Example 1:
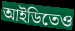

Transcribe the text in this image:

আইডিতেও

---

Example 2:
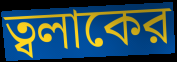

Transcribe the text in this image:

ত্বলাকের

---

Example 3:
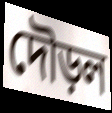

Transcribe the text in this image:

দৌড়ল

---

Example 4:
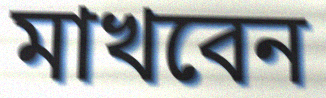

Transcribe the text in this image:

মাখবেন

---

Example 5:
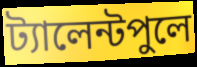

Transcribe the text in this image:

ট্যালেন্টপুলে